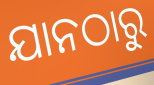
ଯାନଠାରୁ